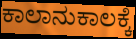
ಕಾಲಾನುಕಾಲಕ್ಕೆ